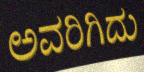
ಅವರಿಗಿದು